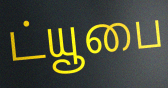
ட்யூபை